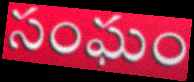
సంఘం